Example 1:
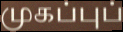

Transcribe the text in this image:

முகப்புப்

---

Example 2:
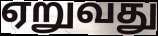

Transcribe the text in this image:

ஏறுவது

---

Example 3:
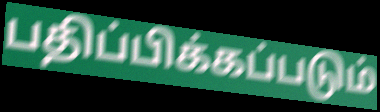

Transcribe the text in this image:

பதிப்பிக்கப்படும்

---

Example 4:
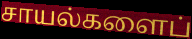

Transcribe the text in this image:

சாயல்களைப்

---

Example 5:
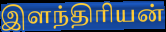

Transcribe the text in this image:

இளந்திரியன்